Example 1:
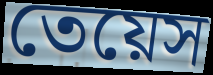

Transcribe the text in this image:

তেয়েস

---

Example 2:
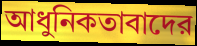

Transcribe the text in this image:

আধুনিকতাবাদের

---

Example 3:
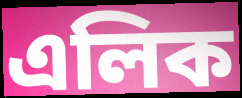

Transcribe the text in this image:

এলিক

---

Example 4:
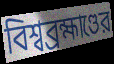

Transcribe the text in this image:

বিশ্বব্রহ্মাণ্ডের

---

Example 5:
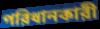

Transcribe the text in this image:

পরিধানকারী